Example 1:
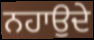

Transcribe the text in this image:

ਨਹਾਉਦੇ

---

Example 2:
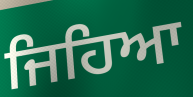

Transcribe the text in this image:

ਜਿਹਿਆ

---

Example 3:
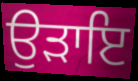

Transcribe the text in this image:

ਉੜਾਇ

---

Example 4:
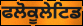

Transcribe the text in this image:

ਫਲੋਕੂਲੇਟਿਡ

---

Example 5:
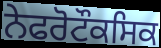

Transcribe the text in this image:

ਨੇਫਰੋਟੌਕਸਿਕ